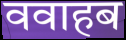
ववाहब